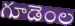
గూడెంల